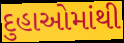
દુહાઓમાંથી